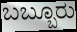
ಬಬ್ಬೂರು